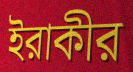
ইরাকীর